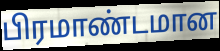
பிரமாண்டமான